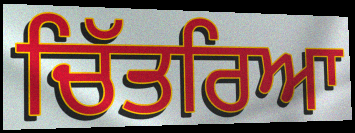
ਚਿੱਤਰਿਆ